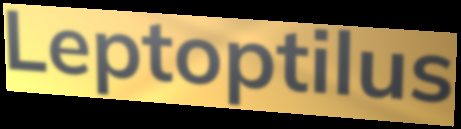
Leptoptilus